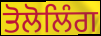
ਤੋਲੋਲਿੰਗ